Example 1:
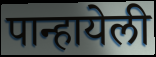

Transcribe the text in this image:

पान्हायेली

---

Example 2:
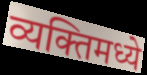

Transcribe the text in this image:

व्यक्तिमध्ये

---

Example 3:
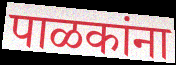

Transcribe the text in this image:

पाळकांना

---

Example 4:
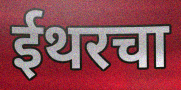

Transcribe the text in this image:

ईथरचा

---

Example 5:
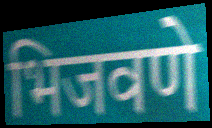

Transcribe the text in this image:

भिजवणे